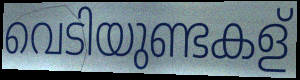
വെടിയുണ്ടകള്